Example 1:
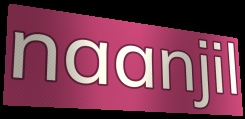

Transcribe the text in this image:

naanjil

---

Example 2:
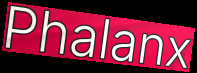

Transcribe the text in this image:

Phalanx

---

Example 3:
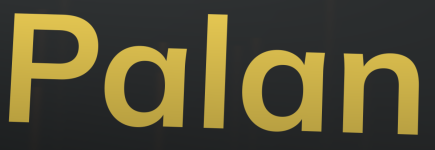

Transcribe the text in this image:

Palan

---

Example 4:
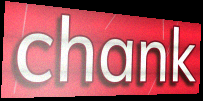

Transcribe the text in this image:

chank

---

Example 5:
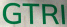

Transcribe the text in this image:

GTRI